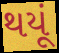
થયૂં